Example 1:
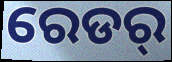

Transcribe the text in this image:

ରେଡର୍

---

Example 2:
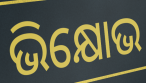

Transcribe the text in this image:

ଭିକ୍ଷୋଭ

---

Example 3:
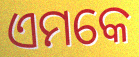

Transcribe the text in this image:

ଏମକେ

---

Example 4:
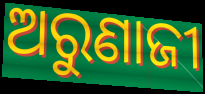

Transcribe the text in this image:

ଅରୁଣାଜୀ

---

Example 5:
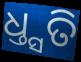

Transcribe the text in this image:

ଧ୍ତ୍ସତି